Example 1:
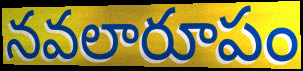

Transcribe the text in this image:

నవలారూపం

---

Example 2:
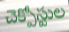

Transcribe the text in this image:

చెక్పోస్టుల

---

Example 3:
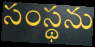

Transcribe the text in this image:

సంస్థను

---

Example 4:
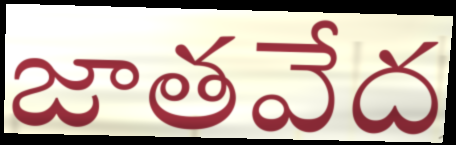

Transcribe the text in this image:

జాతవేద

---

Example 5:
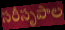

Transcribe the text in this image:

సరీసృపాల